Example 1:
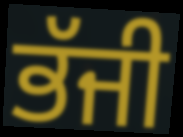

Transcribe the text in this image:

ਭੱਜੀ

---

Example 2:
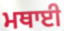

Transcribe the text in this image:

ਮਥਾਈ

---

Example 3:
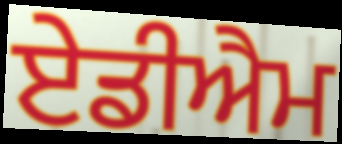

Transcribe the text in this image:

ਏਡੀਐਮ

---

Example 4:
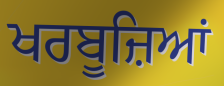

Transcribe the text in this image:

ਖਰਬੂਜ਼ਿਆਂ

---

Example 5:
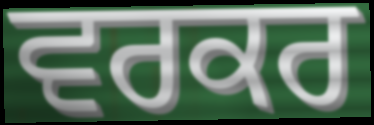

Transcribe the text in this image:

ਵਰਕਰ